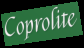
Coprolite